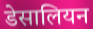
डेसालियन